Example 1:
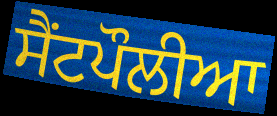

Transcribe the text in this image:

ਸੈਂਟਪੌਲੀਆ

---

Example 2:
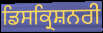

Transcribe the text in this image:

ਡਿਸਕ੍ਰਿਸ਼ਨਰੀ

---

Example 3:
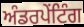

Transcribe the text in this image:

ਅੰਡਰਪੇਂਟਿੰਗ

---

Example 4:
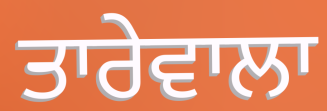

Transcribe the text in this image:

ਤਾਰੇਵਾਲਾ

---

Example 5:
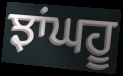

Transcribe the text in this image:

ਝਾਂਘਹੂ